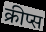
क्रीप्स